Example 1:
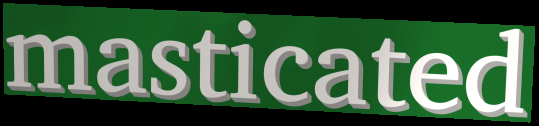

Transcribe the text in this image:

masticated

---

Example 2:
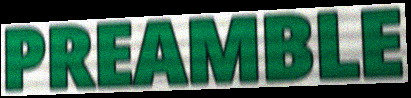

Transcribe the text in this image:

PREAMBLE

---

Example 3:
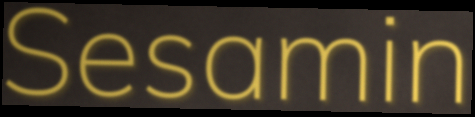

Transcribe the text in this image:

Sesamin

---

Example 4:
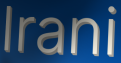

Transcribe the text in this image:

Irani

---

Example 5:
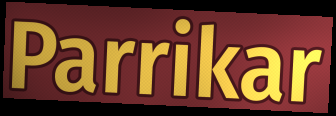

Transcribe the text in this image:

Parrikar